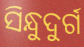
ସିନ୍ଧୁଦୁର୍ଗ